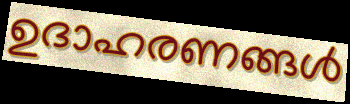
ഉദാഹരണങ്ങൾ